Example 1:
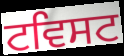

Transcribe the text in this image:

ਟਵਿਸਟ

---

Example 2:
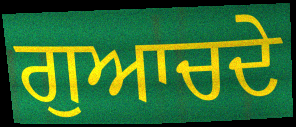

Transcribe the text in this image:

ਗੁਆਚਦੇ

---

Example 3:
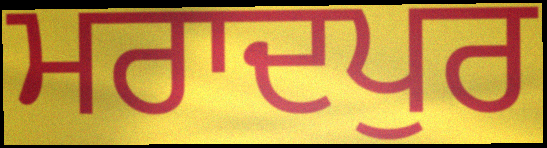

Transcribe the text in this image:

ਮਰਾਦਪੁਰ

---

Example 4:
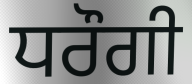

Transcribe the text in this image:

ਧਰੌਗੀ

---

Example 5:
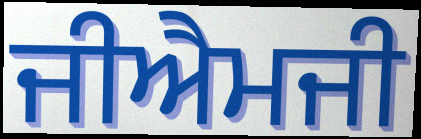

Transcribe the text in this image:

ਜੀਐਮਜੀ